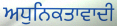
ਅਧੁਨਿਕਤਾਵਾਦੀ